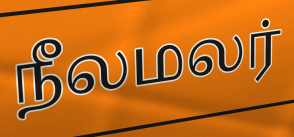
நீலமலர்